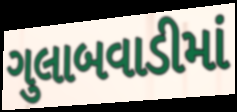
ગુલાબવાડીમાં